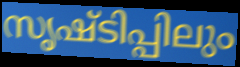
സൃഷ്ടിപ്പിലും